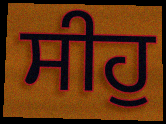
ਸੀਹੁ